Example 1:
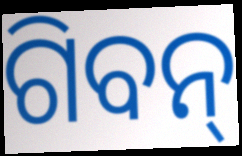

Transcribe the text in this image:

ଗିବନ୍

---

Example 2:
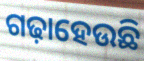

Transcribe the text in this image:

ଗଢ଼ାହେଉଛି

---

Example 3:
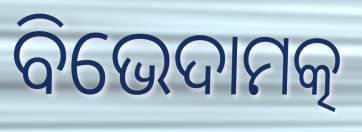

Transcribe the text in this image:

ବିଭେଦାମତ୍କ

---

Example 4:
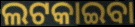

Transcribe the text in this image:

ଲଟକାଇବା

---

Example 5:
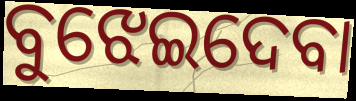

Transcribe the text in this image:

ବୁଝେଇଦେବା